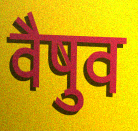
वैषुव